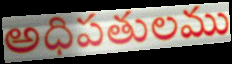
అధిపతులము